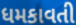
ધમકાવતી